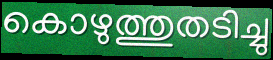
കൊഴുത്തുതടിച്ചു